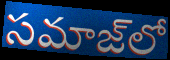
సమాజ్‌లో